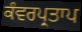
ਕੰਵਰਪ੍ਰਤਾਪ